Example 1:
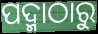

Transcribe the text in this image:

ପଦ୍ମାଠାରୁ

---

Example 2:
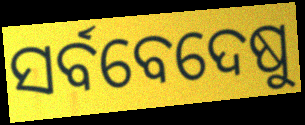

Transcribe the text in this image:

ସର୍ବବେଦେଷୁ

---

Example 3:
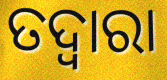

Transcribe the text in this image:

ତଦ୍ବାରା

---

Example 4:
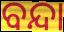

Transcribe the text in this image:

ବନ୍ଦା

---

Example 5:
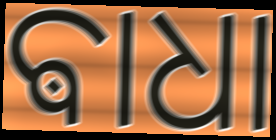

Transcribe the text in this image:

ଵାଧା